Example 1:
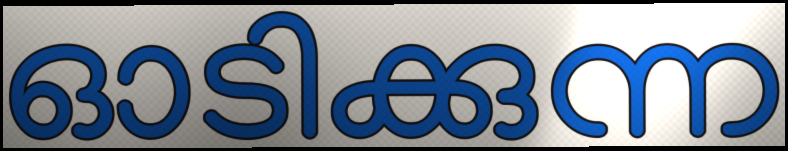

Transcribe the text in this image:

ഓടിക്കുന്ന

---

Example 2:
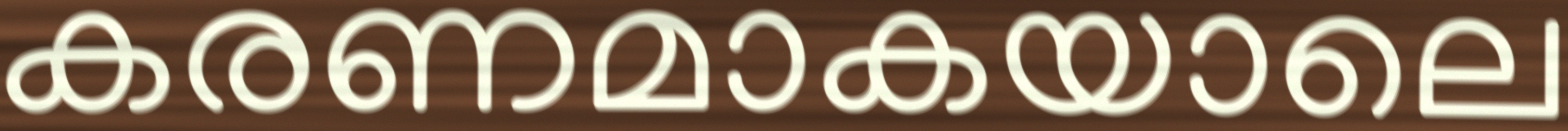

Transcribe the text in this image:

കരണമാകയാലെ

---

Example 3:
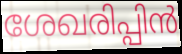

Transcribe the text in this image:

ശേഖരിപ്പിൻ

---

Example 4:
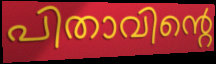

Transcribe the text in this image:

പിതാവിന്റെ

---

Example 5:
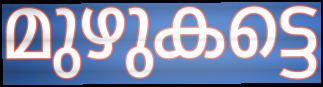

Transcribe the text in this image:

മുഴുകട്ടെ